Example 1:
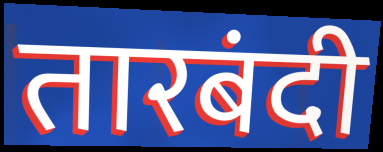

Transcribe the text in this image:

तारबंदी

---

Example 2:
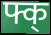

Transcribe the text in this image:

फ्क्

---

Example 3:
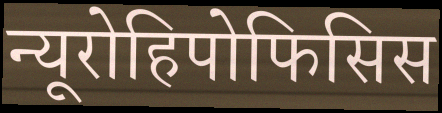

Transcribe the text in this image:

न्यूरोहिपोफिसिस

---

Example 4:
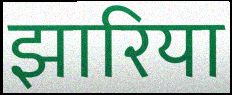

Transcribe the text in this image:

झारिया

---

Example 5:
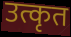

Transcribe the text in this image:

उत्कृत